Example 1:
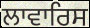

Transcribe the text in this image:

ਲਾਵਾਰਿਸ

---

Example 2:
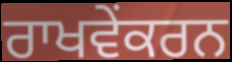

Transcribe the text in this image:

ਰਾਖਵੇਂਕਰਨ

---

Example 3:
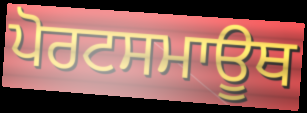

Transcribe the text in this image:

ਪੋਰਟਸਮਾਊਥ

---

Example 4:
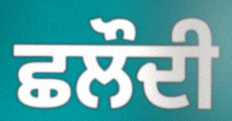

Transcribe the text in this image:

ਛਲੌਦੀ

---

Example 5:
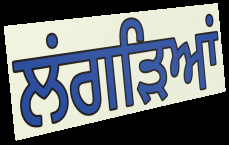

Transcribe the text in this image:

ਲਂਗੜਿਆਂ